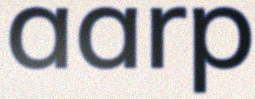
aarp